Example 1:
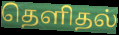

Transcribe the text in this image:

தெளிதல்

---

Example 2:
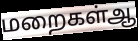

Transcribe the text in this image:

மறைகள்ஆ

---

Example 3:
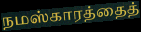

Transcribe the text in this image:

நமஸ்காரத்தைத்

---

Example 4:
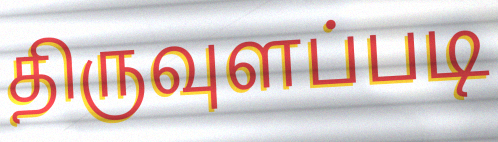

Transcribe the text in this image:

திருவுளப்படி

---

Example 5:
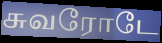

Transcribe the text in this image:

சுவரோடே